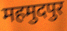
महमुदपुर